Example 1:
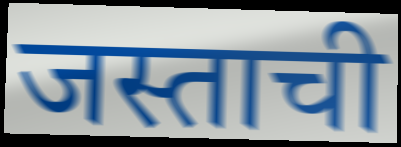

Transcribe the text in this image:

जस्ताची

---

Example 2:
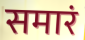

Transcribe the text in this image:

समारं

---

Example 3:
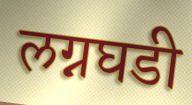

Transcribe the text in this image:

लग्नघडी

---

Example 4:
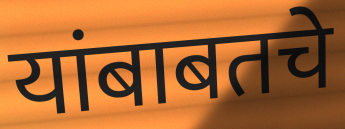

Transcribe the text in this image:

यांबाबतचे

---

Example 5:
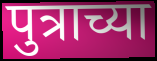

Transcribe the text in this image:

पुत्राच्या